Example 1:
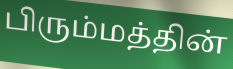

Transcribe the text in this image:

பிரும்மத்தின்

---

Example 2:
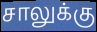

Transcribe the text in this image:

சாலுக்கு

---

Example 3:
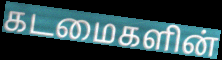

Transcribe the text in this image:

கடமைகளின்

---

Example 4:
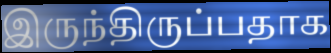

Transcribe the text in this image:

இருந்திருப்பதாக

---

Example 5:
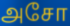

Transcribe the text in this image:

அசோ